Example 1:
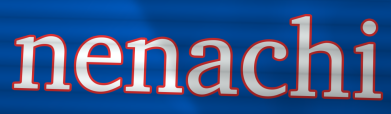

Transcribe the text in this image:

nenachi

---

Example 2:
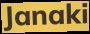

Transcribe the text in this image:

Janaki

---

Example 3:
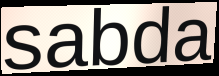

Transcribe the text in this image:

sabda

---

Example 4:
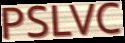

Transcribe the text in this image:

PSLVC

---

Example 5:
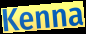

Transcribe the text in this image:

Kenna